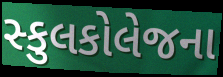
સ્કુલકોલેજના